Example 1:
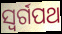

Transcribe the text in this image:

ସ୍ୱର୍ଗପଥ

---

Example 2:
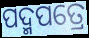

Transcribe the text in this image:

ପଦ୍ମପତ୍ରେ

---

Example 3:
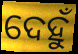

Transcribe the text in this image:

ଦେହୁଁ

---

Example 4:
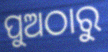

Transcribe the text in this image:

ପୁଅଠାରୁ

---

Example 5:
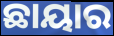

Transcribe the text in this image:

ଛାୟାର